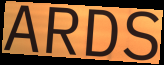
ARDS